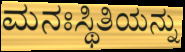
ಮನಃಸ್ಥಿತಿಯನ್ನು